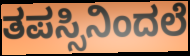
ತಪಸ್ಸಿನಿಂದಲೆ